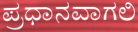
ಪ್ರಧಾನವಾಗಲಿ